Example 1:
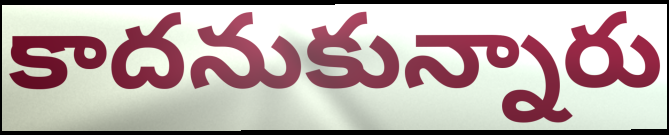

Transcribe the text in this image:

కాదనుకున్నారు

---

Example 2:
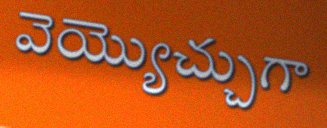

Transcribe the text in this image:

వెయ్యొచ్చుగా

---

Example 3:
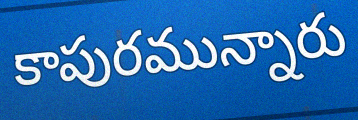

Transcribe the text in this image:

కాపురమున్నారు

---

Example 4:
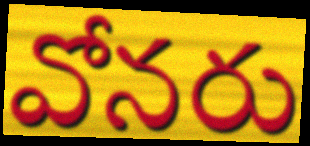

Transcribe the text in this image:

వోనరు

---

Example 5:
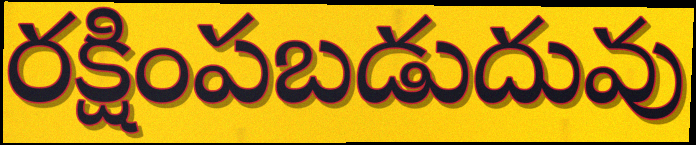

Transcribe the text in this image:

రక్షింపబడుదువు